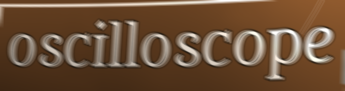
oscilloscope